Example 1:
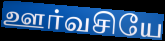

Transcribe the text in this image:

ஊர்வசியே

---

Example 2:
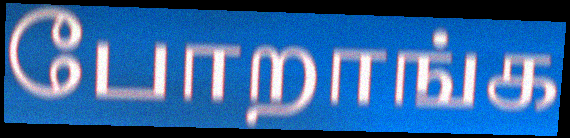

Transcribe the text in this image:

போறாங்க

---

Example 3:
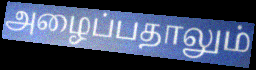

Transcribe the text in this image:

அழைப்பதாலும்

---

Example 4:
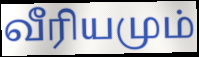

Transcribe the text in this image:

வீரியமும்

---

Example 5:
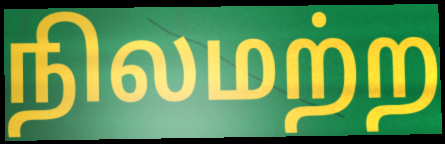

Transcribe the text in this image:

நிலமற்ற